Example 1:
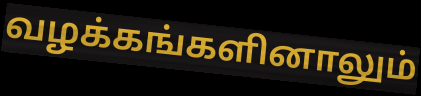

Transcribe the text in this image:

வழக்கங்களினாலும்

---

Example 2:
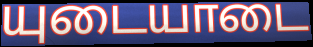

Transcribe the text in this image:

யுடையாடை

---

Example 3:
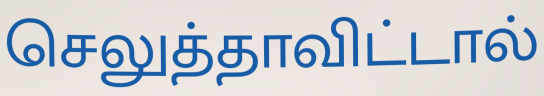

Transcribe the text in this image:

செலுத்தாவிட்டால்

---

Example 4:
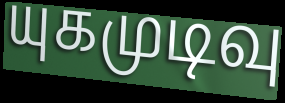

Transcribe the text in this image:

யுகமுடிவு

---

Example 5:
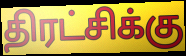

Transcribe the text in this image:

திரட்சிக்கு